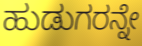
ಹುಡುಗರನ್ನೇ